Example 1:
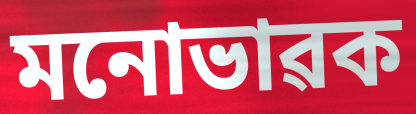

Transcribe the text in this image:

মনোভাৱক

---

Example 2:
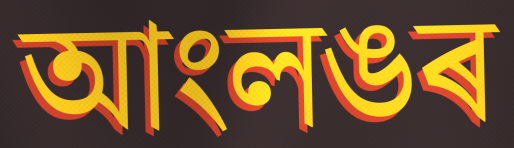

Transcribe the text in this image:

আংলঙৰ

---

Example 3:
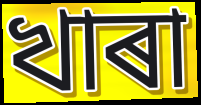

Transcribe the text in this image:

খাৰা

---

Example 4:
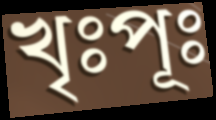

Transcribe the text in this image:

খৃঃপূঃ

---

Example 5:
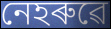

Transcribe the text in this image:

নেহৰুৱে